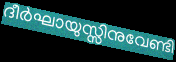
ദീർഘായുസ്സിനുവേണ്ടി